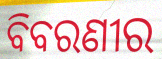
ବିବରଣୀର